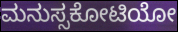
ಮನುಸ್ಸಕೋಟಿಯೋ